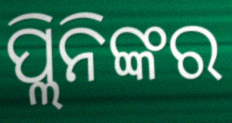
ପ୍ଲିନିଙ୍କର